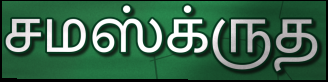
சமஸ்க்ருத